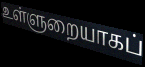
உள்ளுறையாகப்